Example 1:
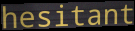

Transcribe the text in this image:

hesitant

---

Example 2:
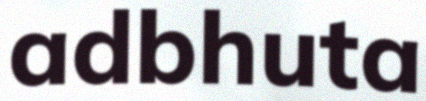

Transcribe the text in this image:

adbhuta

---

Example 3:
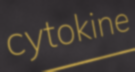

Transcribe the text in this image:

cytokine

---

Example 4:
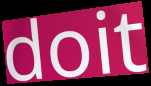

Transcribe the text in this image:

doit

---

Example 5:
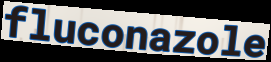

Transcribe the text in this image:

fluconazole